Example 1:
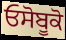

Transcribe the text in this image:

ਓਸੋਬੂਕੋ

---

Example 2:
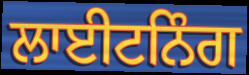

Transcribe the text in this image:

ਲਾਈਟਨਿੰਗ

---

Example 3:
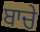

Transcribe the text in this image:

ਬਾਚੇ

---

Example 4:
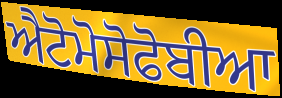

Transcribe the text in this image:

ਐਟੋਮੋਸੋਫੋਬੀਆ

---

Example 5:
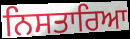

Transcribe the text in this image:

ਨਿਸਤਾਰਿਆ